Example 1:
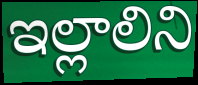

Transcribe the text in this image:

ఇల్లాలిని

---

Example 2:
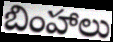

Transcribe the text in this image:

బింహాలు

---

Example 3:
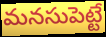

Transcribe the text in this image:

మనసుపెట్టే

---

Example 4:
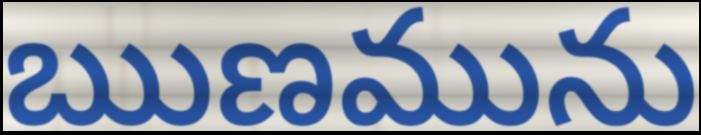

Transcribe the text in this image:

ఋణమును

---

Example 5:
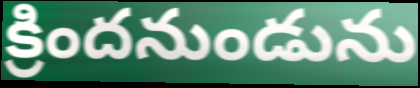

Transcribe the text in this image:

క్రిందనుండును